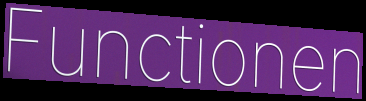
Functionen